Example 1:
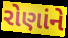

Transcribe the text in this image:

રોણાંને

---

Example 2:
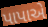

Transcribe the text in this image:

પાપાએ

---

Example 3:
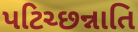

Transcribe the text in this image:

પટિચ્છન્નાતિ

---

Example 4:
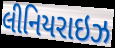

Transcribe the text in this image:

લીનિયરાઇઝ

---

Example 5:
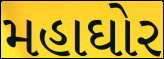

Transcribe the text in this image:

મહાઘોર